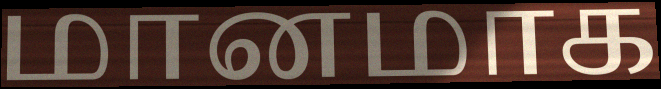
மானமாக